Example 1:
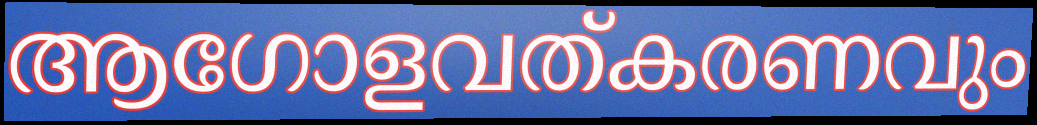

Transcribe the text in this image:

ആഗോളവത്കരണവും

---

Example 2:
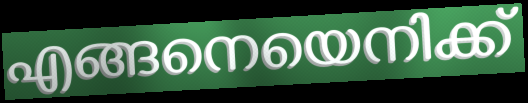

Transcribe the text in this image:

എങ്ങനെയെനിക്ക്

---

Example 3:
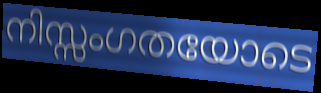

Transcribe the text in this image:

നിസ്സംഗതയോടെ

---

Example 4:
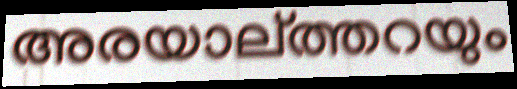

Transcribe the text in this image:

അരയാല്ത്തറയും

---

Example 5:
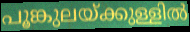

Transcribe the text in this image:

പൂങ്കുലയ്ക്കുള്ളിൽ